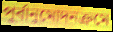
পূর্বানুমোদনক্রমে